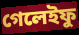
গেলেইফু